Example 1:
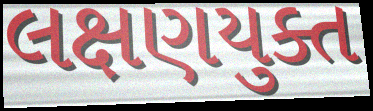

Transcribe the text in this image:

લક્ષણયુક્ત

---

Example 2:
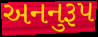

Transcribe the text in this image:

અનનુરૂપ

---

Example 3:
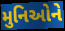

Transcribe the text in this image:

મુનિઓને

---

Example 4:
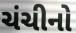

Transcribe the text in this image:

ચંચીનો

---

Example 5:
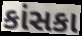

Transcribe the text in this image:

કાંસકા